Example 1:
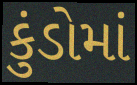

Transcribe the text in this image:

કુંડોમાં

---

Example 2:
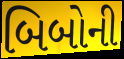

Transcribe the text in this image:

બિબોની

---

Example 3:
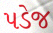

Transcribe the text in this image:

પડેજ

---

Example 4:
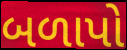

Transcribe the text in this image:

બળાપો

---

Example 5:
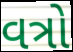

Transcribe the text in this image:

વત્રો